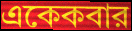
একেকবার